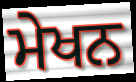
ਮੇਖਨ